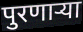
पुरणाऱ्या